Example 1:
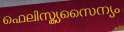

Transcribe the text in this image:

ഫെലിസ്ത്യസൈന്യം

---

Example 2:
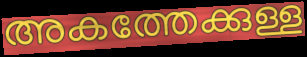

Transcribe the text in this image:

അകത്തേക്കുള്ള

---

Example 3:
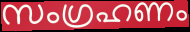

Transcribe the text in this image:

സംഗ്രഹണം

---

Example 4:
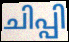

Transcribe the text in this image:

ചിപ്പി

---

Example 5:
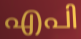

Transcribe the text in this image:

എപി